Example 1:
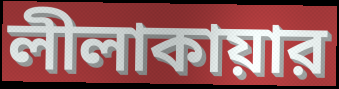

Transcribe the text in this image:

লীলাকায়ার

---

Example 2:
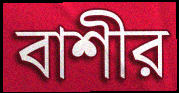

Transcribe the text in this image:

বাশীর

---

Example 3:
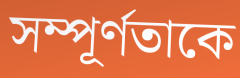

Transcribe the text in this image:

সম্পূর্ণতাকে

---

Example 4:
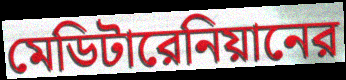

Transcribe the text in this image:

মেডিটারেনিয়ানের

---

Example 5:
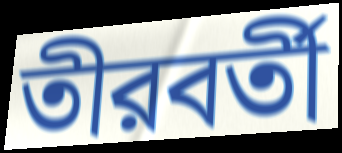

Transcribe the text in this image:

তীরবর্তী